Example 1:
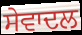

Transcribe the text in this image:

ਸੇਵਾਦਲ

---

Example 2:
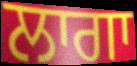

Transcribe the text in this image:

ਲਾਗਾ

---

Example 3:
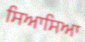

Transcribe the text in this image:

ਸਿਆਸਿਆ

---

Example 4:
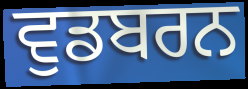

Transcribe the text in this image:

ਵੁਡਬਰਨ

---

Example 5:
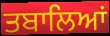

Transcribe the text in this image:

ਤਬਾਲਿਆਂ